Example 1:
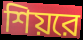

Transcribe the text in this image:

শিয়রে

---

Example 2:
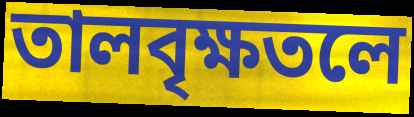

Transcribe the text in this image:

তালবৃক্ষতলে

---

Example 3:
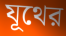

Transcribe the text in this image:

যূথের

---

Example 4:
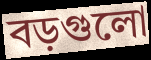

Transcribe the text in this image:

বড়গুলো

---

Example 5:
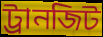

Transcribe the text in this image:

ট্রানজিট